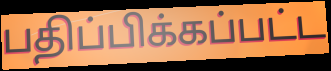
பதிப்பிக்கப்பட்ட